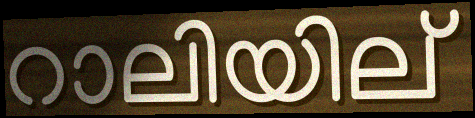
റാലിയില്